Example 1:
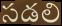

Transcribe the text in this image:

సడలి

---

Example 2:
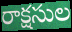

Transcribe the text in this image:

రాక్షసుల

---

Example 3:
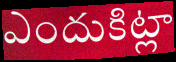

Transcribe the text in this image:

ఎందుకిట్లా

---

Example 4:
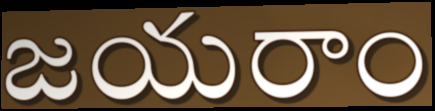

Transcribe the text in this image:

జయరాం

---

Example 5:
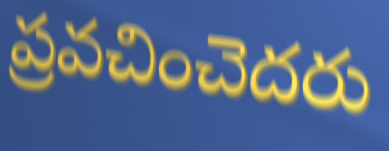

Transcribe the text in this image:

ప్రవచించెదరు